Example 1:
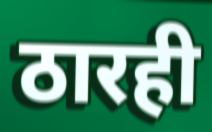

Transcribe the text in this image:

ठारही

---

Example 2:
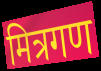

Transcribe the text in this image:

मित्रगण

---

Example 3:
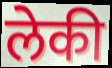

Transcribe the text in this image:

लेकी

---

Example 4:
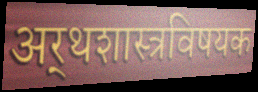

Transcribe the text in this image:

अर्थशास्त्रविषयक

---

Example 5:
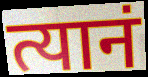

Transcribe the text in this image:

त्यानं